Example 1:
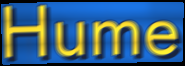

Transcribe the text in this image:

Hume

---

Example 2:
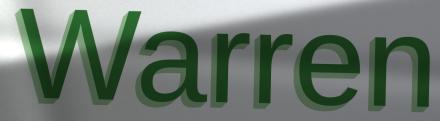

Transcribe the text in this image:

Warren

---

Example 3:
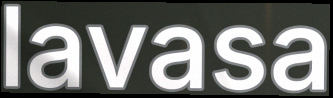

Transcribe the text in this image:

lavasa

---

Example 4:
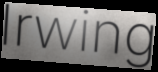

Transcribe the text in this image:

Irwing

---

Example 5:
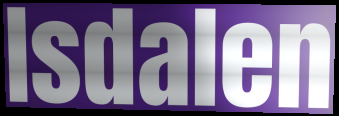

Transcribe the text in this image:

Isdalen